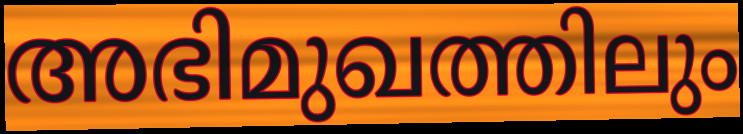
അഭിമുഖത്തിലും